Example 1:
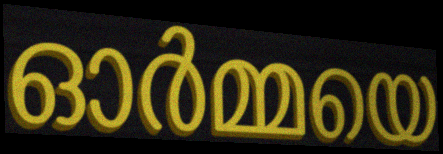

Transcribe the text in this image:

ഓർമ്മയെ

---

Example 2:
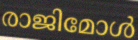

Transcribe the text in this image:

രാജിമോൾ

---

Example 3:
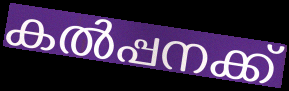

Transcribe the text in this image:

കൽപ്പനക്ക്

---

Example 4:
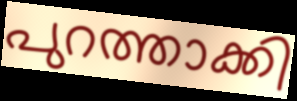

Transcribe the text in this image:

പുറത്താക്കി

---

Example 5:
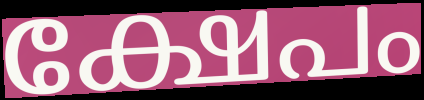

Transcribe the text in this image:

ക്ഷേപം